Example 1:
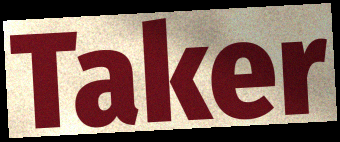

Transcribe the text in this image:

Taker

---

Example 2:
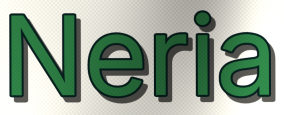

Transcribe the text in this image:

Neria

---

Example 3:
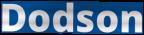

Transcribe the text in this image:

Dodson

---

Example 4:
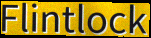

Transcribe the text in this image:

Flintlock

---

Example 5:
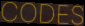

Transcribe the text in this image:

CODES